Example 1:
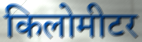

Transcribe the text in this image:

किलोमीटर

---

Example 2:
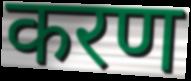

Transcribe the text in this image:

करण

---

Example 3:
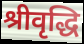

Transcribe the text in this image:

श्रीवृद्धि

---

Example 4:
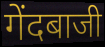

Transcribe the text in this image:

गेंदबाजी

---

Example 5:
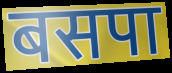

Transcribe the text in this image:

बसपा